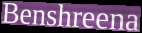
Benshreena